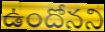
ఉందోనని